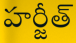
హర్జీత్